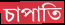
চাপাতি